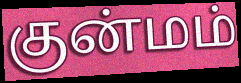
குன்மம்